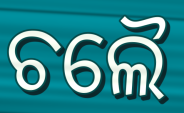
ଚଲୈ